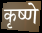
कृष्णे